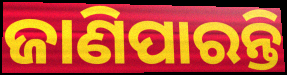
ଜାଣିପାରନ୍ତି